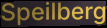
Speilberg